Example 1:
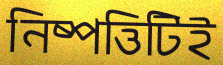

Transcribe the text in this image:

নিষ্পত্তিটিই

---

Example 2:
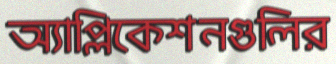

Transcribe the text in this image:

অ্যাপ্লিকেশনগুলির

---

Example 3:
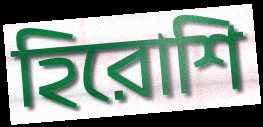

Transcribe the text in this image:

হিরোশি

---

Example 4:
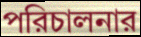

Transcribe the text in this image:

পরিচালনার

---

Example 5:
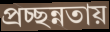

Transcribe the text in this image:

প্রচ্ছন্নতায়